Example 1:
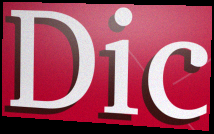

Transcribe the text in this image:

Dic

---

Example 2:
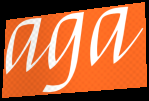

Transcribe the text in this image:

aga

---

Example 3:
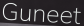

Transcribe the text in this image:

Guneet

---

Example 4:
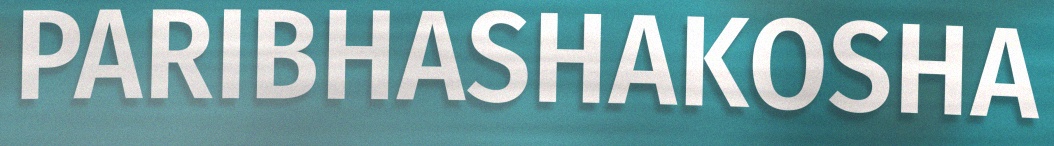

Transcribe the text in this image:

PARIBHASHAKOSHA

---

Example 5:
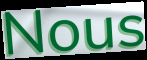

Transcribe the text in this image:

Nous